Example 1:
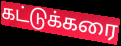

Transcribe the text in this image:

கட்டுக்கரை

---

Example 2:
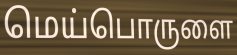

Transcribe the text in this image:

மெய்பொருளை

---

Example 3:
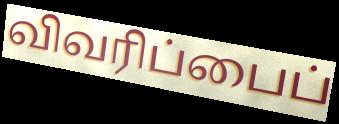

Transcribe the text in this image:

விவரிப்பைப்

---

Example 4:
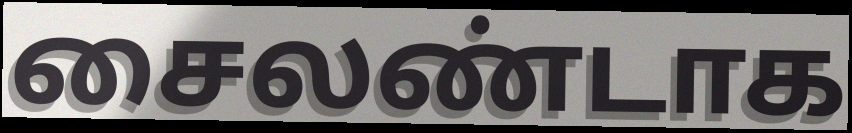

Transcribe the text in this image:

சைலண்டாக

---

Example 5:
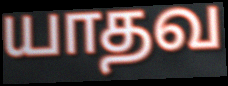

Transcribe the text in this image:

யாதவ